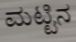
ಮಟ್ಟಿನ